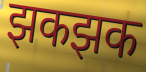
झकझक